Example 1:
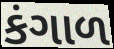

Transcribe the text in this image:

કંગાળ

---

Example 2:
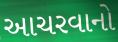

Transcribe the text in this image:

આચરવાનો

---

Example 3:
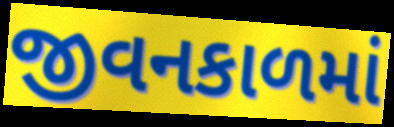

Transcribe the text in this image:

જીવનકાળમાં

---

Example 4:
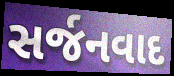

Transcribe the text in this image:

સર્જનવાદ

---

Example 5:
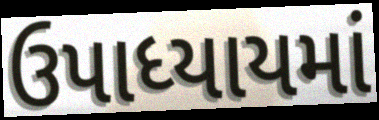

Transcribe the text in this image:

ઉપાધ્યાયમાં